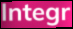
Integr